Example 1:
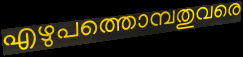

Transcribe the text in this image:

എഴുപത്തൊമ്പതുവരെ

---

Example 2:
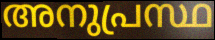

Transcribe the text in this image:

അനുപ്രസ്ഥ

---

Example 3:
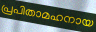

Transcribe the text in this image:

പ്രപിതാമഹനായ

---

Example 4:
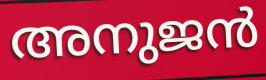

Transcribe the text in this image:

അനുജൻ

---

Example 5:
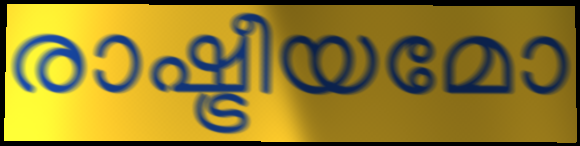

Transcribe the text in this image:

രാഷ്ട്രീയമോ